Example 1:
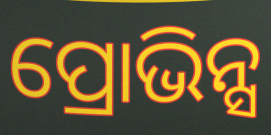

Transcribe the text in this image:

ପ୍ରୋଭିନ୍ସ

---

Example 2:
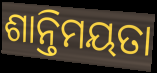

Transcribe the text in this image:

ଶାନ୍ତିମୟତା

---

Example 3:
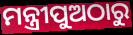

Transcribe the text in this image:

ମନ୍ତ୍ରୀପୁଅଠାରୁ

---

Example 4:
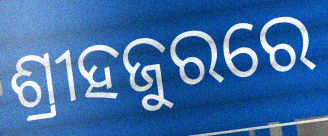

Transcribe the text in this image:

ଶ୍ରୀହଜୁରରେ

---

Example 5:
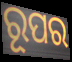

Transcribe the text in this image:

ରୂପର